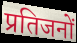
प्रतिजनों